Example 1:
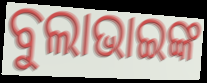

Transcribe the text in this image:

ବୁଲାଭାଇଙ୍କ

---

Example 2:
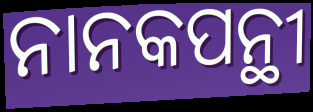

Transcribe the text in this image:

ନାନକପନ୍ଥୀ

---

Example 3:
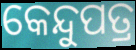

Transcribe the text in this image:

କେନ୍ଦୁପତ୍ର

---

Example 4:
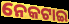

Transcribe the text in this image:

ନେକଟାଇ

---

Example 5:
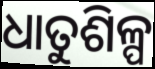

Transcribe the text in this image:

ଧାତୁଶିଳ୍ପ